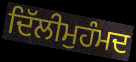
ਦਿੱਲੀਮੁਹੰਮਦ